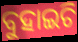
ବୁହାଇଚି